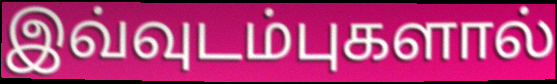
இவ்வுடம்புகளால்